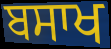
ਬਸਾਖ